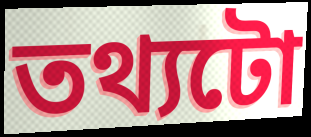
তথ্যটো